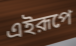
এইরূপে